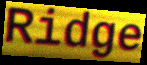
Ridge